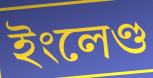
ইংলেণ্ড